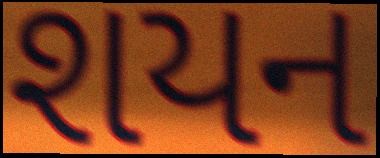
શયન